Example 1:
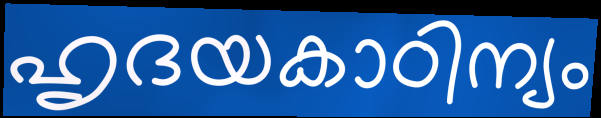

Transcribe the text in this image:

ഹൃദയകാഠിന്യം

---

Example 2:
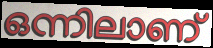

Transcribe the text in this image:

ഒന്നിലാണ്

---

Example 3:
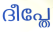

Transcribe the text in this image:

ദീപ്തേ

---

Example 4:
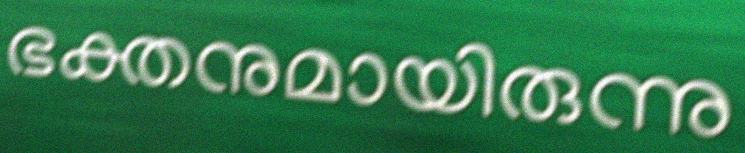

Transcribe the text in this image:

ഭക്തനുമായിരുന്നു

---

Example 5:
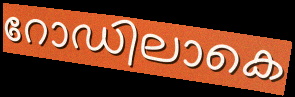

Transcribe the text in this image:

റോഡിലാകെ